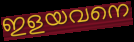
ഇളയവനെ